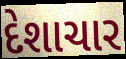
દેશાચાર